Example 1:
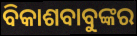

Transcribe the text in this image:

ବିକାଶବାବୁଙ୍କର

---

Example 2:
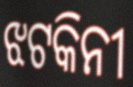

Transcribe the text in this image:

ଝଟକିନୀ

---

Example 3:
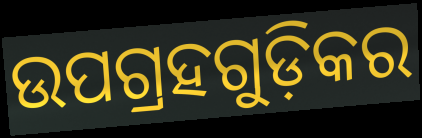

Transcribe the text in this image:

ଉପଗ୍ରହଗୁଡ଼ିକର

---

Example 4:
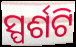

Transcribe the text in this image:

ସ୍ପର୍ଶଟି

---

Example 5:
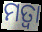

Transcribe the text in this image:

ମତ୍ୱା